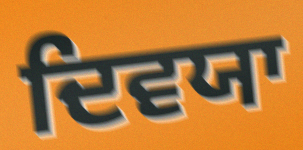
ਦਿਵਯਾ